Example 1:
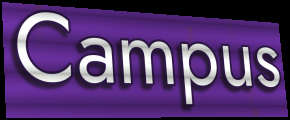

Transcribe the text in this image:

Campus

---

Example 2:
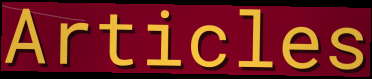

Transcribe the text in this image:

Articles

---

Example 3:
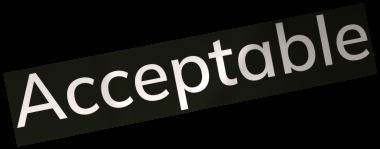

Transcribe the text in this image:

Acceptable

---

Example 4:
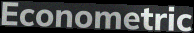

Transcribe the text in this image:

Econometric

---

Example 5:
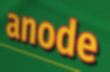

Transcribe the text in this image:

anode